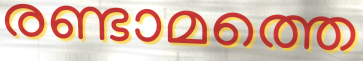
രണ്ടാമത്തെ